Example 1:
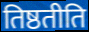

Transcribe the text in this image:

तिष्ठतीति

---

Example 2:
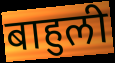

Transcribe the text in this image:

बाहुली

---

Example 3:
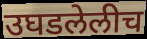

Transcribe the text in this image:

उघडलेलीच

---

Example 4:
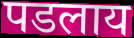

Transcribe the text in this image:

पडलाय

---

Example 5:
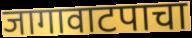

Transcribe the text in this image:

जागावाटपाचा